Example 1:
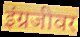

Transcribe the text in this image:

इंग्रजीवर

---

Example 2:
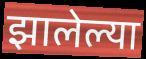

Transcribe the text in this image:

झालेल्या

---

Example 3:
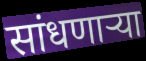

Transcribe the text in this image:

सांधणार्‍या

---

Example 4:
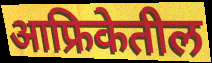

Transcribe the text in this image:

आफ्रिकेतील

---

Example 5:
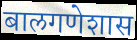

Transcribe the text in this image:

बालगणेशास